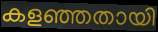
കളഞ്ഞതായി